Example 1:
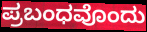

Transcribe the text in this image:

ಪ್ರಬಂಧವೊಂದು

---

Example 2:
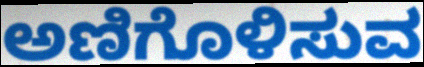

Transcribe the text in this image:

ಅಣಿಗೊಳಿಸುವ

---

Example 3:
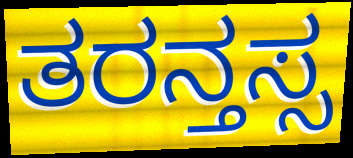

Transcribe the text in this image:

ತರನ್ತಸ್ಸ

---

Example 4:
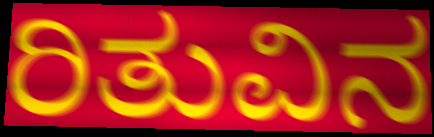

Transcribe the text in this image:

ರಿತುವಿನ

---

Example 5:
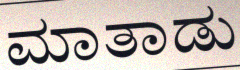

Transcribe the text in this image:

ಮಾತಾಡು